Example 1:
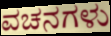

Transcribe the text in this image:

ವಚನಗಳು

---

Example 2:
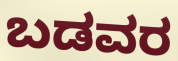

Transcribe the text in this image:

ಬಡವರ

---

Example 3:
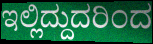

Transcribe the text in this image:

ಇಲ್ಲಿದ್ದುದರಿಂದ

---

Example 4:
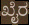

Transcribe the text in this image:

ಖೈರ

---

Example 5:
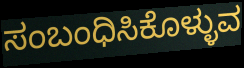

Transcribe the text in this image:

ಸಂಬಂಧಿಸಿಕೊಳ್ಳುವ